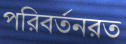
পরিবর্তনরত